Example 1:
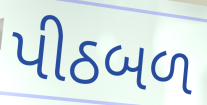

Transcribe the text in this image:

પીઠબળ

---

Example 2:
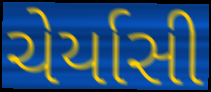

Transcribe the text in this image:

ચેર્યાસી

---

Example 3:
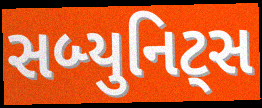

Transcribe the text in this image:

સબ્યુનિટ્સ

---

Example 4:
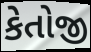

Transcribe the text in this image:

કેતોજી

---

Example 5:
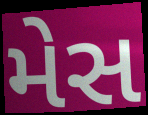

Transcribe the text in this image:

મેસ